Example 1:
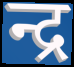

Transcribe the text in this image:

न्द्र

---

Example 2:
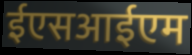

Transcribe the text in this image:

ईएसआईएम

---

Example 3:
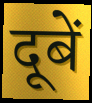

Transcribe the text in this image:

दूबें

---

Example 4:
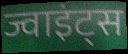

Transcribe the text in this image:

ज्वाइंट्स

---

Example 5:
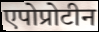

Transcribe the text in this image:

एपोप्रोटीन